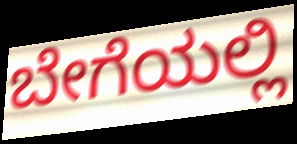
ಬೇಗೆಯಲ್ಲಿ